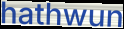
hathwun